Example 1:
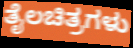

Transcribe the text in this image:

ತೈಲಚಿತ್ರಗಳು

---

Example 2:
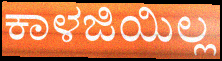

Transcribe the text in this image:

ಕಾಳಜಿಯಿಲ್ಲ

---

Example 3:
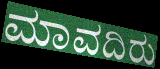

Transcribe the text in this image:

ಮಾವದಿರು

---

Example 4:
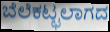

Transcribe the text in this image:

ಬೆಲೆಕಟ್ಟಲಾಗದ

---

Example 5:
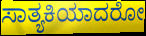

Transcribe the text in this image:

ಸಾತ್ಯಕಿಯಾದರೋ